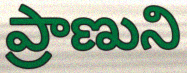
ప్రాణుని